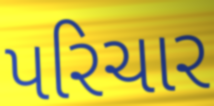
પરિચાર